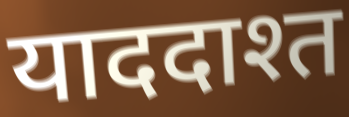
याददाश्त